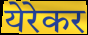
येरेकर